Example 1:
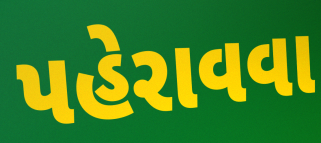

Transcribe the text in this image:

પહેરાવવા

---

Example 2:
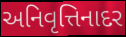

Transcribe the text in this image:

અનિવૃત્તિનાદર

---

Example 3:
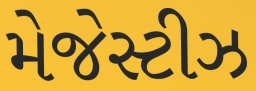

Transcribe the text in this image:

મેજેસ્ટીઝ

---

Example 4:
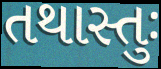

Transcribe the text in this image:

તથાસ્તુઃ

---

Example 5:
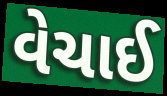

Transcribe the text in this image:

વેચાઈ